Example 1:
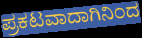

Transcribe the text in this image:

ಪ್ರಕಟವಾದಾಗಿನಿಂದ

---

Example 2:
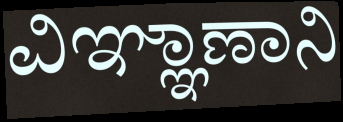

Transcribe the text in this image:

ವಿಞ್ಞಾಣಾನಿ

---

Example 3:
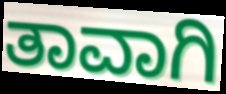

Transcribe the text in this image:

ತಾವಾಗಿ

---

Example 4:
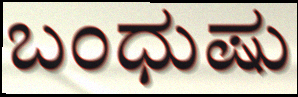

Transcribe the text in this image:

ಬಂಧುಷು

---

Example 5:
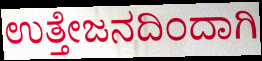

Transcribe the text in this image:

ಉತ್ತೇಜನದಿಂದಾಗಿ